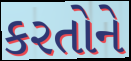
કરતોને